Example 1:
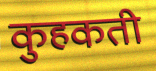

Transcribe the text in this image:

कुहकती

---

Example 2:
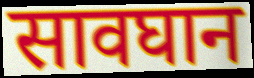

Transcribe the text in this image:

सावघान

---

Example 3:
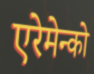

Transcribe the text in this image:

एरेमेन्को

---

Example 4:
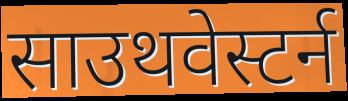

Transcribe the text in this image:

साउथवेस्टर्न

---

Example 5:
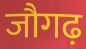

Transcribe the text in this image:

जौगढ़